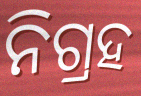
ନିଗ୍ରହ